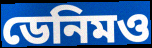
ডেনিমও